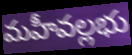
మహీవల్లభు